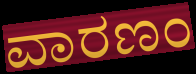
ವಾರಣಂ